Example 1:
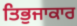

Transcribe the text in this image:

ਤਿਭੁਜਾਕਾਰ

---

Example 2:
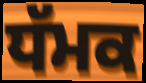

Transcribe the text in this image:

ਧੱਮਕ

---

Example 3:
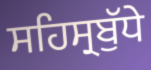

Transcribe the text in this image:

ਸਹਿਸ੍ਰਬੁੱਧੇ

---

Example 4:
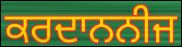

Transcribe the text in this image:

ਕਰਦਾਨਨੀਜ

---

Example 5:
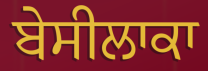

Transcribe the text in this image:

ਬੇਸੀਲਾਕਾ